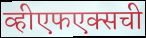
व्हीएफएक्सची